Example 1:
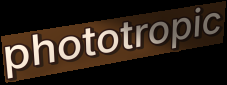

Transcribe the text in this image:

phototropic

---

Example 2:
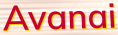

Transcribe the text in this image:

Avanai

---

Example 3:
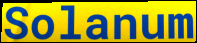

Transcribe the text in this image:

Solanum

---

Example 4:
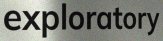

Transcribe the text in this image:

exploratory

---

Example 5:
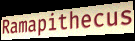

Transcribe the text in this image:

Ramapithecus